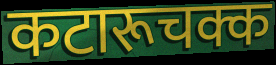
कटारूचक्क